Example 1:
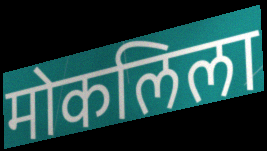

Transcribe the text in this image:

मोकलिला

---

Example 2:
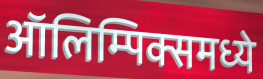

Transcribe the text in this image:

ऑलिम्पिक्समध्ये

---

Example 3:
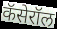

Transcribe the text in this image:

कॅसेरॉल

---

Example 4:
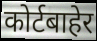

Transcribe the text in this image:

कोर्टबाहेर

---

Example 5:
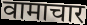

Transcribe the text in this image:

वामाचार